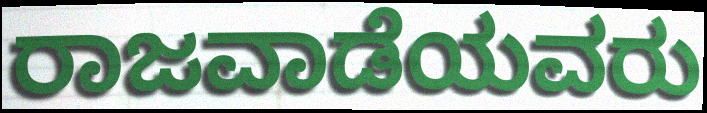
ರಾಜವಾಡೆಯವರು